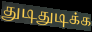
துடிதுடிக்க